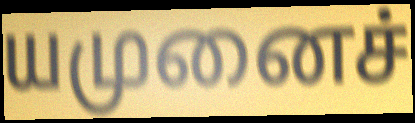
யமுனைச்